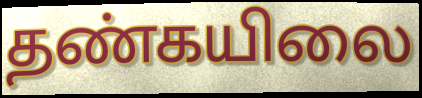
தண்கயிலை